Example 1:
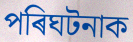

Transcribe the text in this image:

পৰিঘটনাক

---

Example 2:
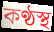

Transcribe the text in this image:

কণ্ঠস্থ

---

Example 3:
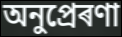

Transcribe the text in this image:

অনুপ্ৰেৰণা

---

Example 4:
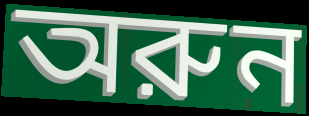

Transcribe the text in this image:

অৰুন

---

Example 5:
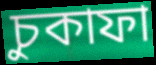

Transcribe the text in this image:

চুকাফা